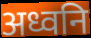
अध्वनि